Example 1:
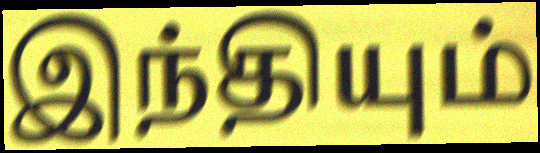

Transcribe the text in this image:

இந்தியும்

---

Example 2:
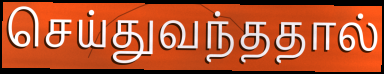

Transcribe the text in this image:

செய்துவந்ததால்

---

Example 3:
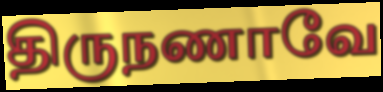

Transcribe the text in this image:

திருநணாவே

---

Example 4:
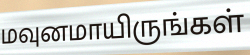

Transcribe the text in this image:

மவுனமாயிருங்கள்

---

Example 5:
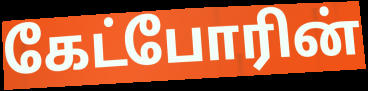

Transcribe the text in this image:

கேட்போரின்